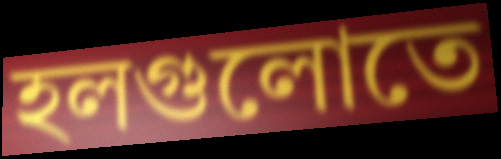
হলগুলোতে